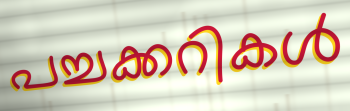
പച്ചക്കറികൾ